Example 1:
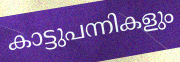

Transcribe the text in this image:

കാട്ടുപന്നികളും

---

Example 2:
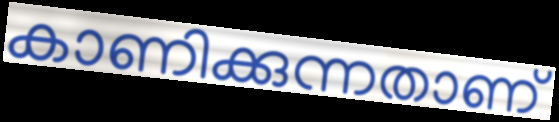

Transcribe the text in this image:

കാണിക്കുന്നതാണ്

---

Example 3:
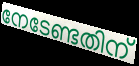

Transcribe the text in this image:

നേടേണ്ടതിന്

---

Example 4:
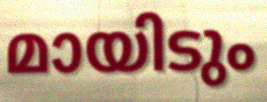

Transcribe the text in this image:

മായിടും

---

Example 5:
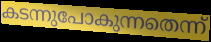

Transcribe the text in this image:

കടന്നുപോകുന്നതെന്ന്